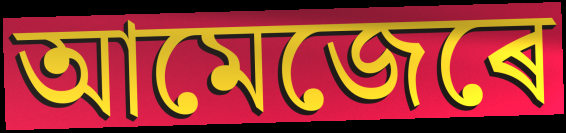
আমেজেৰে